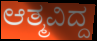
ಆತ್ಮವಿದ್ದ